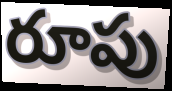
రూపు